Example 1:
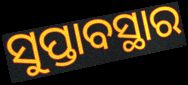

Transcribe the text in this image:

ସୁପ୍ତାବସ୍ଥାର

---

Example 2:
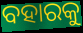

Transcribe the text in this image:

ବହାରକୁ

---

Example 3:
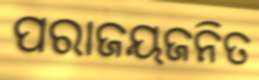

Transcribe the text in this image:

ପରାଜୟଜନିତ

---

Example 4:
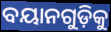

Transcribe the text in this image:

ବୟାନଗୁଡ଼ିକୁ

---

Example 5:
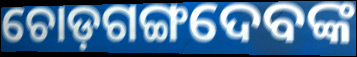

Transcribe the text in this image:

ଚୋଡ଼ଗଙ୍ଗଦେବଙ୍କ